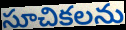
సూచికలను